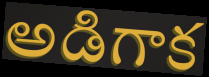
అడిగాక